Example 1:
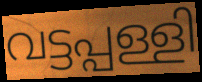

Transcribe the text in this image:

വട്ടപ്പള്ളി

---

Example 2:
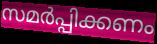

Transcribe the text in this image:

സമർപ്പിക്കണം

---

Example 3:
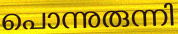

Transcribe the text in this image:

പൊന്നുരുന്നി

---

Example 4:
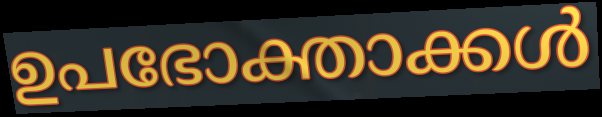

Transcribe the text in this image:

ഉപഭോക്താക്കൾ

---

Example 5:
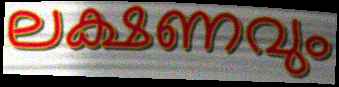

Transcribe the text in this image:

ലക്ഷണവും